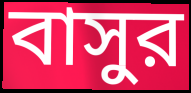
বাসুর